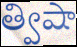
త్విషా